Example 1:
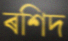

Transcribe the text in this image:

ৰশিদ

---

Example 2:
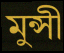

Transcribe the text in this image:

মুন্সী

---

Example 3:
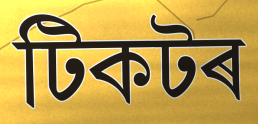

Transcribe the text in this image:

টিকটৰ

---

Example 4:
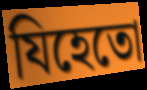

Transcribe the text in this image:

যিহেতো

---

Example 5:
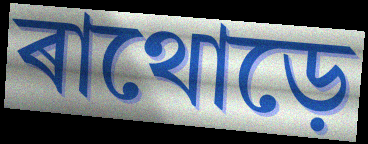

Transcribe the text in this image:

ৰাথোড়ে